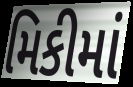
મિકીમાં